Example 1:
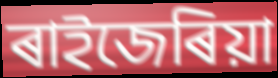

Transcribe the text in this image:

ৰাইজেৰিয়া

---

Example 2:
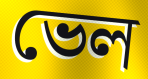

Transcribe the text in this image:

ভেল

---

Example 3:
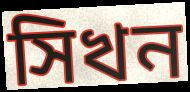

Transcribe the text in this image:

সিখন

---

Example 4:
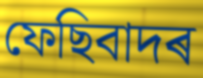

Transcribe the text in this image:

ফেছিবাদৰ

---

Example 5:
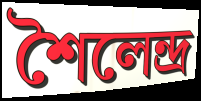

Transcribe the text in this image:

শৈলেন্দ্ৰ